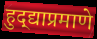
हुद्द्याप्रमाणे